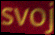
svoj